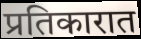
प्रतिकारात